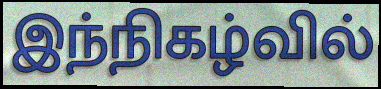
இந்நிகழ்வில்